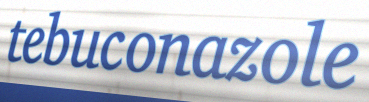
tebuconazole